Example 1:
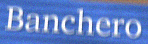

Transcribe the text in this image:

Banchero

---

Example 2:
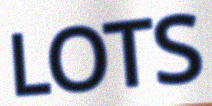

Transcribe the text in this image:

LOTS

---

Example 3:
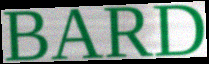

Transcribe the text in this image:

BARD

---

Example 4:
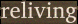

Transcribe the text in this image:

reliving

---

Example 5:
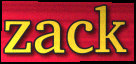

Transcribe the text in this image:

zack